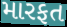
મારફત